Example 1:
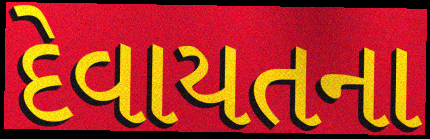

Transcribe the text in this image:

દેવાયતના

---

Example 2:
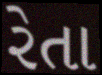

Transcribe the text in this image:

રેતા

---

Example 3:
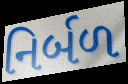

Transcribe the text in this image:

નિર્બળ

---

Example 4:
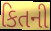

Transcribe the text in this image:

કિતની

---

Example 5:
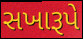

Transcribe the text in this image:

સખારૂપે